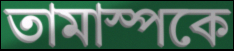
তামাস্পকে